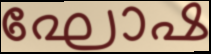
ഘോഷ